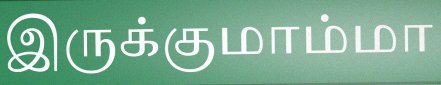
இருக்குமாம்மா